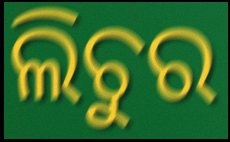
ଲିଚୁର